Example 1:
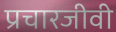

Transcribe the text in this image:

प्रचारजीवी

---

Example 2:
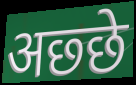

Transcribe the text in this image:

अछ्छे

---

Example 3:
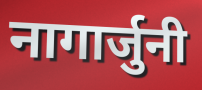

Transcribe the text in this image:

नागार्जुनी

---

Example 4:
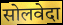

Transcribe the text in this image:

सोलवेदा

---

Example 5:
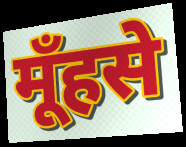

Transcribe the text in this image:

मूँहसे